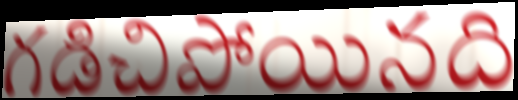
గడిచిపోయినది